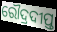
ରୌଦ୍ରଦୀପ୍ତ